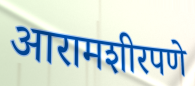
आरामशीरपणे